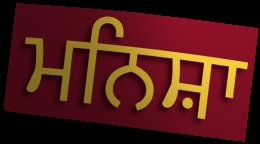
ਮਨਿਸ਼ਾ